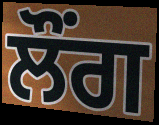
ਲੌਂਗ